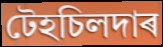
টেহচিলদাৰ